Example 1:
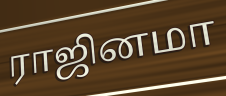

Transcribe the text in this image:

ராஜினமா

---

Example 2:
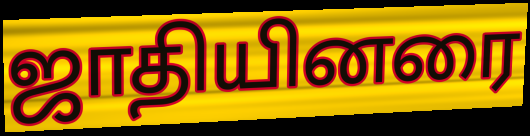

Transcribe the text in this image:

ஜாதியினரை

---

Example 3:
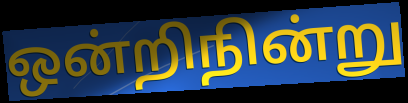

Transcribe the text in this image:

ஒன்றிநின்று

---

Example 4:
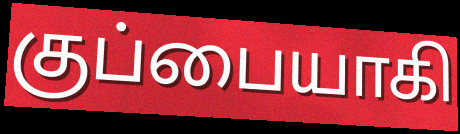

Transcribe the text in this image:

குப்பையாகி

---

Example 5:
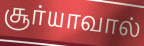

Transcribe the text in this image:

சூர்யாவால்